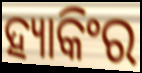
ହ୍ୟାକିଂର